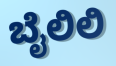
ಬೈಲಿಲಿ